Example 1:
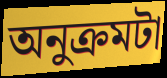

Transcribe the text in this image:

অনুক্রমটা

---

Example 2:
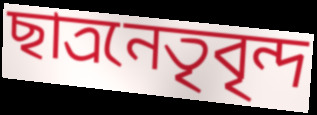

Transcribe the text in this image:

ছাত্রনেতৃবৃন্দ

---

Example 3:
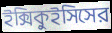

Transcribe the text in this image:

ইক্সিকুইসিসের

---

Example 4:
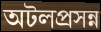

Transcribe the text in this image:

অটলপ্রসন্ন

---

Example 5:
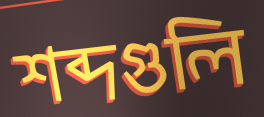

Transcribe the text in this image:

শব্দগুলি